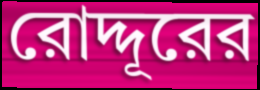
রোদ্দূরের